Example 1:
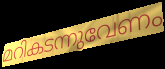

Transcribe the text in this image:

മറികടന്നുവേണം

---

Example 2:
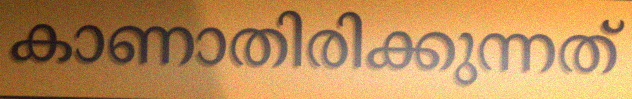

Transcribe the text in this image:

കാണാതിരിക്കുന്നത്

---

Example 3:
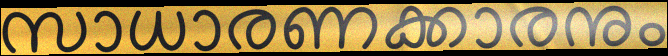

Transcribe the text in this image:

സാധാരണക്കാരനും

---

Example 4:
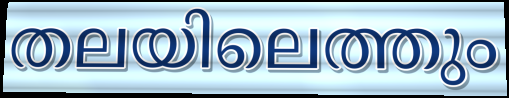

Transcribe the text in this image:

തലയിലെത്തും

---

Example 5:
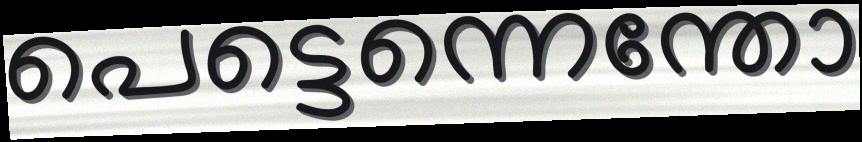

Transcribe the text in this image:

പെട്ടെന്നെന്തോ